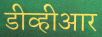
डीव्हीआर